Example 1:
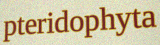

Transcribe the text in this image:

pteridophyta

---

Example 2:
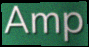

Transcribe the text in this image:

Amp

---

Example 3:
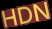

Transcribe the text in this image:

HDN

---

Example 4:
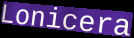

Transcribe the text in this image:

Lonicera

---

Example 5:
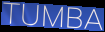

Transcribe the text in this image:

TUMBA